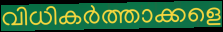
വിധികർത്താക്കളെ